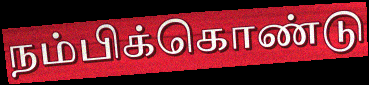
நம்பிக்கொண்டு